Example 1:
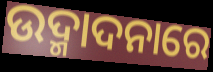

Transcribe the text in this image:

ଉଦ୍ମାଦନାରେ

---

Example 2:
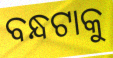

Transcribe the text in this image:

ବନ୍ଧଟାକୁ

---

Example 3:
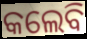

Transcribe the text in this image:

କଲେବି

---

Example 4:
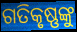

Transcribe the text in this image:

ଗତିକୃଷ୍ଣଙ୍କୁ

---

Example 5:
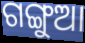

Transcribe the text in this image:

ଗଙ୍ଗୁଆ